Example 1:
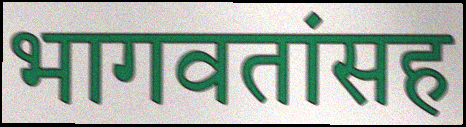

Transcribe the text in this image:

भागवतांसह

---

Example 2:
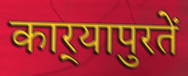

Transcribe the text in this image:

कार्यापुरतें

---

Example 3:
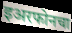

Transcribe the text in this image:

इअरफोनचा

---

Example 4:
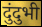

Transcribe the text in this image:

दुंदुभी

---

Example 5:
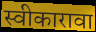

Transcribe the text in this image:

स्वीकारावा